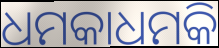
ଧମକାଧମକି